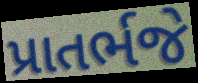
પ્રાતર્ભજે